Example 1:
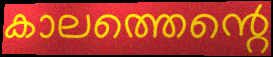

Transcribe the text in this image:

കാലത്തെന്റെ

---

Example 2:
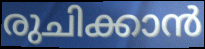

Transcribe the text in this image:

രുചിക്കാൻ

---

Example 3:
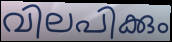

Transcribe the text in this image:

വിലപിക്കും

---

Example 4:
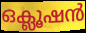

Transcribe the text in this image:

ഒക്ലൂഷൻ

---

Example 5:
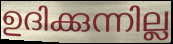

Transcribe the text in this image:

ഉദിക്കുന്നില്ല